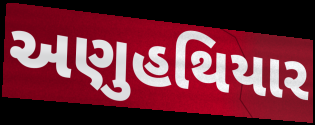
અણુહથિયાર